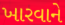
ખારવાને